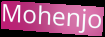
Mohenjo